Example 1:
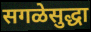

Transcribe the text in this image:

सगळेसुद्धा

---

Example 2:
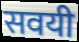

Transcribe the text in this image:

सवयी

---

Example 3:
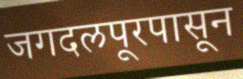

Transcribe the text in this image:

जगदलपूरपासून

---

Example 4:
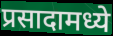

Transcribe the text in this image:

प्रसादामध्ये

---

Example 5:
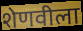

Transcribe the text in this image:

शेणवीला